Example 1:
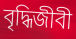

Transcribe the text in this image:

বৃদ্ধিজীবী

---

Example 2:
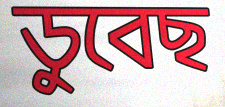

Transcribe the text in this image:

ডুবেছ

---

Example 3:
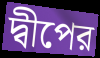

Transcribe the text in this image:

দ্বীপের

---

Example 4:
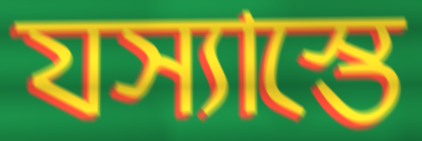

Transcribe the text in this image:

যস্যাস্তে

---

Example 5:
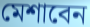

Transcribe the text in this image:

মেশাবেন